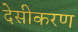
देसीकरण